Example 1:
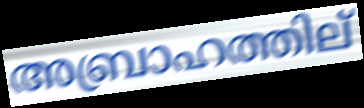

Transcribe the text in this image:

അബ്രാഹത്തില്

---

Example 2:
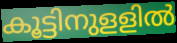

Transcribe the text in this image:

കൂട്ടിനുളളിൽ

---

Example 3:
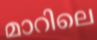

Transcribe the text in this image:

മാറിലെ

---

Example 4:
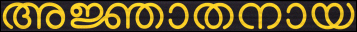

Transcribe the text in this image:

അജ്ഞാതനായ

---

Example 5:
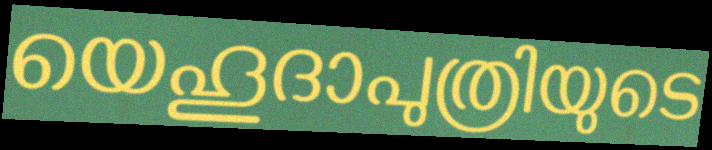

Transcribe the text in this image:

യെഹൂദാപുത്രിയുടെ